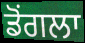
ਡੋਂਗਲਾ